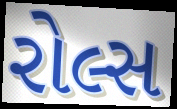
રોલ્સ